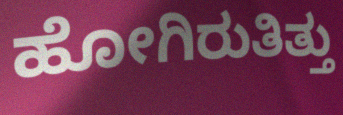
ಹೋಗಿರುತಿತ್ತು